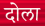
दोला